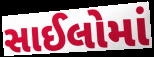
સાઈલોમાં